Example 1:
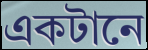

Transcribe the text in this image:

একটানে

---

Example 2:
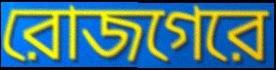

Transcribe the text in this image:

রোজগেরে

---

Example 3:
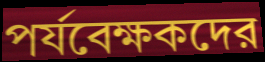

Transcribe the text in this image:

পর্যবেক্ষকদের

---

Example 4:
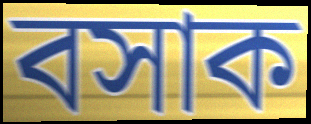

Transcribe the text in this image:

বসাক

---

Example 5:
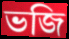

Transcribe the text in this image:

ভজি